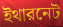
ইথারনেট